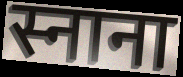
स्नाना